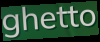
ghetto